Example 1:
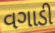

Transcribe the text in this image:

વગાડી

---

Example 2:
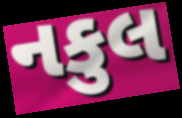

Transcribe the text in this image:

નકુલ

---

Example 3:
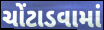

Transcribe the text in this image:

ચોંટાડવામાં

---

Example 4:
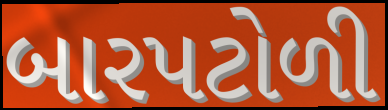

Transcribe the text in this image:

બારપટોળી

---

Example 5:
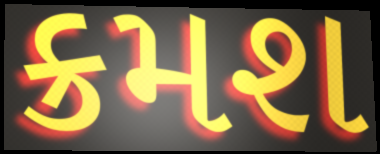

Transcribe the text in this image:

ક્રમશ